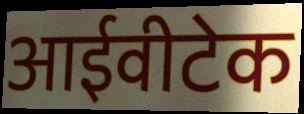
आईवीटेक